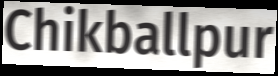
Chikballpur